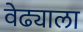
वेढ्याला